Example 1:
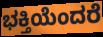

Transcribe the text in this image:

ಭಕ್ತಿಯೆಂದರೆ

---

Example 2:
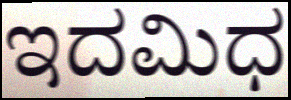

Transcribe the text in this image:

ಇದಮಿಧ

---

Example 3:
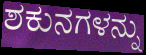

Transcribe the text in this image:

ಶಕುನಗಳನ್ನು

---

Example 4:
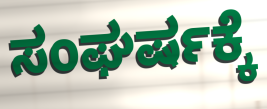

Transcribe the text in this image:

ಸಂಘರ್ಷಕ್ಕೆ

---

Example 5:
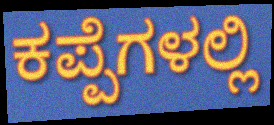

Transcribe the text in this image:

ಕಪ್ಪೆಗಳಲ್ಲಿ